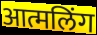
आत्मलिंग